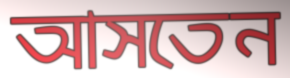
আসতেন